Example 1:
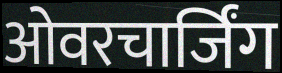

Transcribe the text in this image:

ओवरचार्जिंग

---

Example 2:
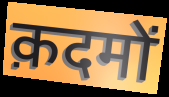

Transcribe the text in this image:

क़दमों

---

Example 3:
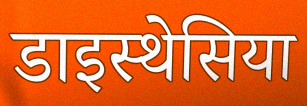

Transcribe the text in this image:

डाइस्थेसिया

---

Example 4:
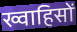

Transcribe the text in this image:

ख्वाहिसों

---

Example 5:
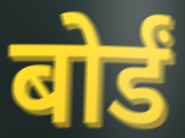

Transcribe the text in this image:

बोर्डं